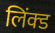
लिंक्ड